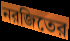
নরজিতের